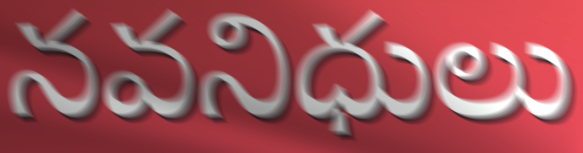
నవనిధులు